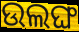
ଉଲଙ୍ଘ